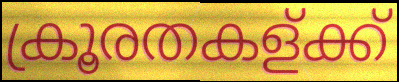
ക്രൂരതകള്ക്ക്